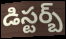
డిస్టర్బ్